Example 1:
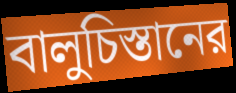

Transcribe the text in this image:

বালুচিস্তানের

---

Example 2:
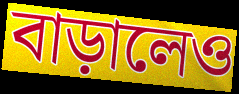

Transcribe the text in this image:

বাড়ালেও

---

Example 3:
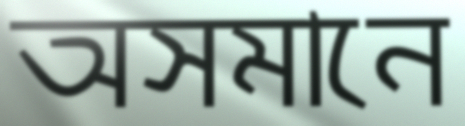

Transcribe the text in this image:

অসমানে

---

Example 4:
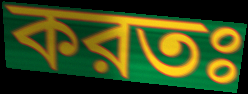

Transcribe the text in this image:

করতঃ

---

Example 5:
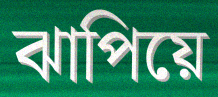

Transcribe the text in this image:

ঝাপিয়ে